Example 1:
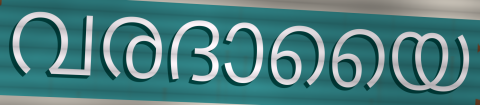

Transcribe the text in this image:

വരദായൈ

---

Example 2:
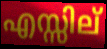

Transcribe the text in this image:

എസ്സില്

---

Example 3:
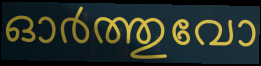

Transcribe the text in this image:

ഓർത്തുവോ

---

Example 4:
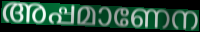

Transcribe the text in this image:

അപ്പമാണേന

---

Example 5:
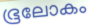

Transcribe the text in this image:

ഭൂലോകം